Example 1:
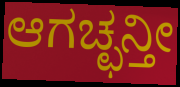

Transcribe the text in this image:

ಆಗಚ್ಛನ್ತೀ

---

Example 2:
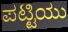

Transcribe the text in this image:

ಪಟ್ಟಿಯು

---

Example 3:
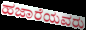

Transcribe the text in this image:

ಹಜಾರೆಯವರು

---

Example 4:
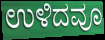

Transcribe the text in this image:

ಉಳಿದವೂ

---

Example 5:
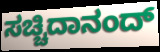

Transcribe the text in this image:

ಸಚ್ಚಿದಾನಂದ್